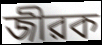
জীৱক